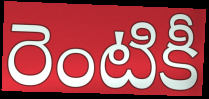
రెంటికీ